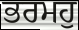
ਭਰਮਹੁ